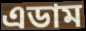
এডাম